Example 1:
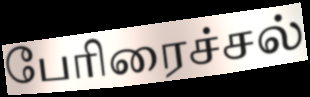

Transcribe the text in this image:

பேரிரைச்சல்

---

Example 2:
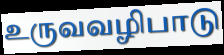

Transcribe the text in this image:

உருவவழிபாடு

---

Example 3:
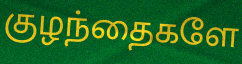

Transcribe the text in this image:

குழந்தைகளே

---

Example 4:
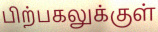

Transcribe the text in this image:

பிற்பகலுக்குள்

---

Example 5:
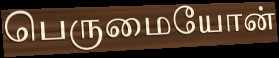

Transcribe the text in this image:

பெருமையோன்